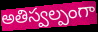
అతిస్వల్పంగా